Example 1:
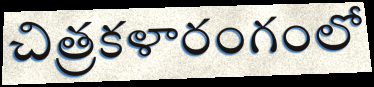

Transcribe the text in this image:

చిత్రకళారంగంలో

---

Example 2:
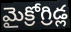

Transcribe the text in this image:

మైక్రోగ్రిడ్ల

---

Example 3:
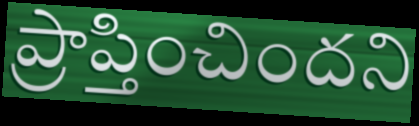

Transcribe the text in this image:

ప్రాప్తించిందని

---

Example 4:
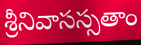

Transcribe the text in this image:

శ్రీనివాసస్సతాం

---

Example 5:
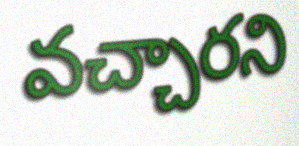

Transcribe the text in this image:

వచ్చారని